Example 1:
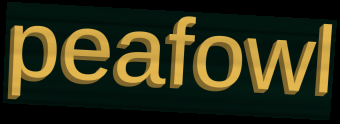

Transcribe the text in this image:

peafowl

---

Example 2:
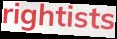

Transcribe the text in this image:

rightists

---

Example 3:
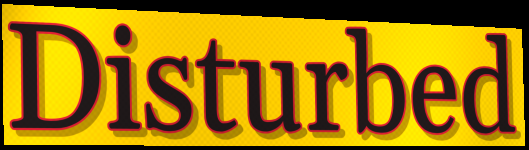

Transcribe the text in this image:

Disturbed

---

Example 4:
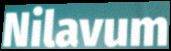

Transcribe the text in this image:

Nilavum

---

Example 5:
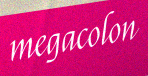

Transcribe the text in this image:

megacolon